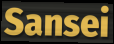
Sansei